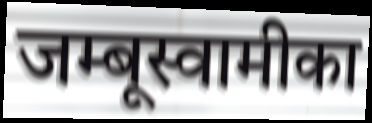
जम्बूस्वामीका